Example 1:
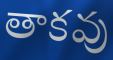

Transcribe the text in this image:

తాకవు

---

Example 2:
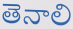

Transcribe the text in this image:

తెనాలి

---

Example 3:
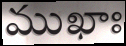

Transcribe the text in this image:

ముఖాః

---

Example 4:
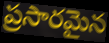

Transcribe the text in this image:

ప్రసారమైన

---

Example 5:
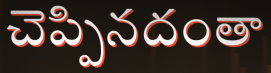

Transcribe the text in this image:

చెప్పినదంతా